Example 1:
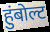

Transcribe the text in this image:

हुंबोल्ट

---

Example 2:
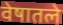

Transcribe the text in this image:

वेषातले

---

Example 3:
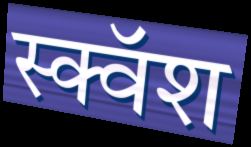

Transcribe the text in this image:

स्क्वॅश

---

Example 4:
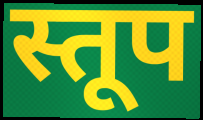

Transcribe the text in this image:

स्तूप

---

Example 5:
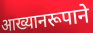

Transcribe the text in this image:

आख्यानरूपाने